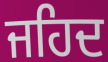
ਜਹਿਦ